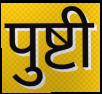
पुष्टी